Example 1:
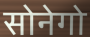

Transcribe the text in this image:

सोनेगो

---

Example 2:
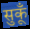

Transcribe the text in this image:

सुकूँ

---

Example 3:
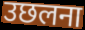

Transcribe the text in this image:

उछलना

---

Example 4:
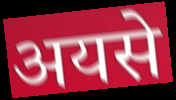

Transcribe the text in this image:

अयसे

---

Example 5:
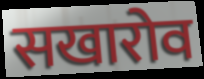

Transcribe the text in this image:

सखारोव